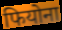
फियोना